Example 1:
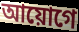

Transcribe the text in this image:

আয়োগে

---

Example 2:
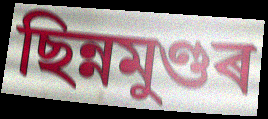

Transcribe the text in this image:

ছিন্নমুণ্ডৰ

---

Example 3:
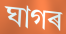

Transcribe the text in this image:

ঘাগৰ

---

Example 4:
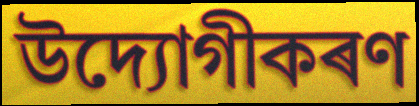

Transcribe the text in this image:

উদ্যোগীকৰণ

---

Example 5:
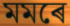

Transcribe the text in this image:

মমৰে